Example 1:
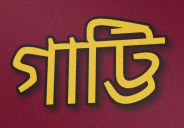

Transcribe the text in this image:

গাট্টি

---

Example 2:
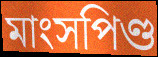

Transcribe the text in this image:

মাংসপিণ্ড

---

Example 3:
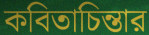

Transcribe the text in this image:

কবিতাচিন্তার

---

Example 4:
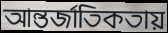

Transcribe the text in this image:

আন্তর্জাতিকতায়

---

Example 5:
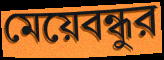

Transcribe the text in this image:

মেয়েবন্ধুর